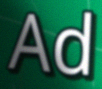
Ad